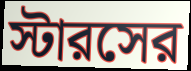
স্টারসের